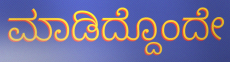
ಮಾಡಿದ್ದೊಂದೇ